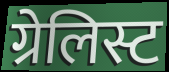
ग्रेलिस्ट